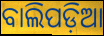
ବାଲିପଡ଼ିଆ